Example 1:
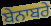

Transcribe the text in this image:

ਬੇਨਾਬਰੇ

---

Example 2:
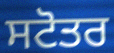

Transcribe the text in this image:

ਸਟੋਤਰ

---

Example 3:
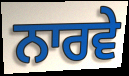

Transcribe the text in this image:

ਨਾਰਵੇ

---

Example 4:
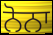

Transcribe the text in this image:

ਨੋਨਾ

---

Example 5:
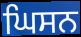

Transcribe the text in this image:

ਘਿਸਨ